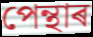
পেন্থাৰ